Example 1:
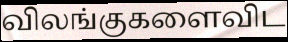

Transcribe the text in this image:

விலங்குகளைவிட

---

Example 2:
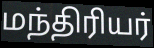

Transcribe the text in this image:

மந்திரியர்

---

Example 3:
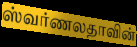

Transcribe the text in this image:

ஸ்வர்ணலதாவின்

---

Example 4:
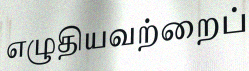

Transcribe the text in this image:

எழுதியவற்றைப்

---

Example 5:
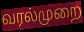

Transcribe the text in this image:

வரல்முறை